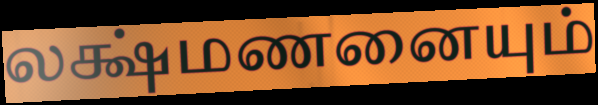
லக்ஷ்மணனையும்